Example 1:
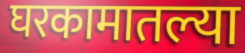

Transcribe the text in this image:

घरकामातल्या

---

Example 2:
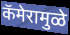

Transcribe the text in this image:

कॅमेरामुळे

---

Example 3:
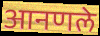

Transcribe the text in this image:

आनणले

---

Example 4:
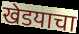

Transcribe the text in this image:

खेडयाचा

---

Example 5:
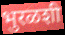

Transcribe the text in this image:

भुरळशी